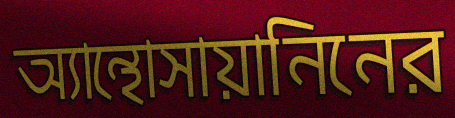
অ্যান্থোসায়ানিনের